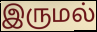
இருமல்